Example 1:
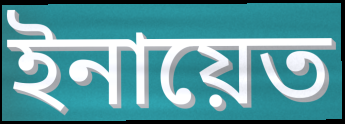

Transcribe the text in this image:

ইনায়েত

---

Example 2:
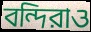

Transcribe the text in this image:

বন্দিরাও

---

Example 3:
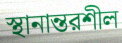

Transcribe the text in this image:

স্থানান্তরশীল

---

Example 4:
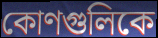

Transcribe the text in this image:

কোণগুলিকে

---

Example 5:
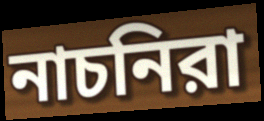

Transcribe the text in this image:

নাচনিরা